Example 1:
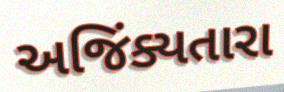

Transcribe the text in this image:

અજિંક્યતારા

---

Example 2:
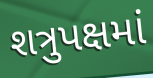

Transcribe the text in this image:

શત્રુપક્ષમાં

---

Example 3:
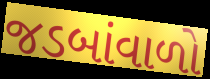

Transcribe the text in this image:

જડબાંવાળો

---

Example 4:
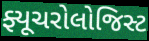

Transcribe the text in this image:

ફ્યૂચરોલોજિસ્ટ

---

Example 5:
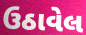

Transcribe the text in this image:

ઉઠાવેલ